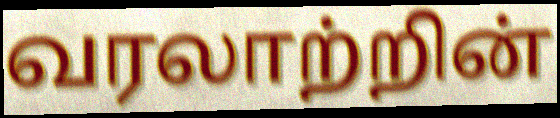
வரலாற்றின்